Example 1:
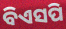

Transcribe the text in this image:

ବିଏସପି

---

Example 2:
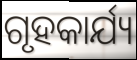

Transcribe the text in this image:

ଗୃହକାର୍ଯ୍ୟ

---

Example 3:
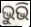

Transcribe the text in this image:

ଭୁଭି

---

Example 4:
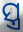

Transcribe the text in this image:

ସ୍ତ୍ର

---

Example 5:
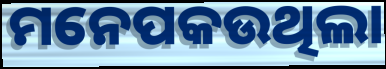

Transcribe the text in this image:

ମନେପକଉଥିଲା